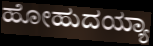
ಹೋಹುದಯ್ಯಾ